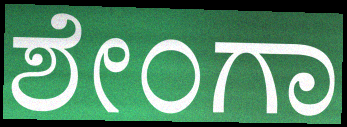
ಶೇಂಗಾ